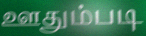
ஊதும்படி